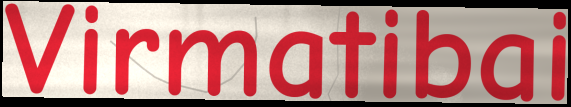
Virmatibai